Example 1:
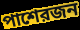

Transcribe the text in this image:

পাশেরজন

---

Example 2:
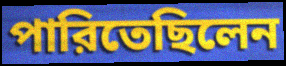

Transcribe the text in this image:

পারিতেছিলেন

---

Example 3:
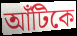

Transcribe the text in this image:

আঁটিকে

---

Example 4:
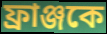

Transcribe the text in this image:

ফ্রাঞ্জকে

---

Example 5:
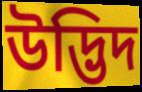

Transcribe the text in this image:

উদ্ভিদ